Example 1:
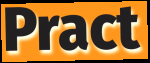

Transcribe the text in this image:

Pract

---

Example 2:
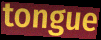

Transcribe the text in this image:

tongue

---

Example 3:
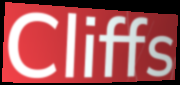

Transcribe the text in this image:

Cliffs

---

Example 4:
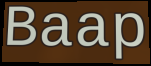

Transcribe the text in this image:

Baap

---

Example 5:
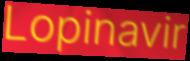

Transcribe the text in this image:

Lopinavir